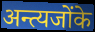
अन्त्यजोंके